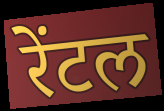
रेंटल